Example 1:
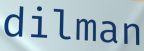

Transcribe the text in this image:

dilman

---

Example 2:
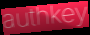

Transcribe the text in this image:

authkey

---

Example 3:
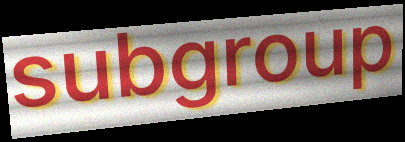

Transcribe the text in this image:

subgroup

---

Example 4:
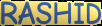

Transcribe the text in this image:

RASHID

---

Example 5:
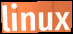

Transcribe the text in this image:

linux